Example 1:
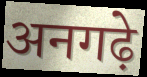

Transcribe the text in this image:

अनगढ़े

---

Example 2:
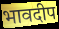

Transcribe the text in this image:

भावदीप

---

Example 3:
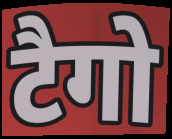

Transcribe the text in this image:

टैगो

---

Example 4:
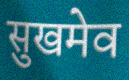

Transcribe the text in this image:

सुखमेव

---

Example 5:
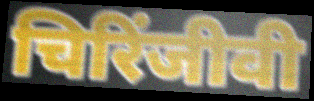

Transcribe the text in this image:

चिरिंजीवी